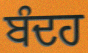
ਬੰਦਹ